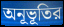
অনূভূতির